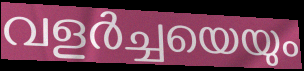
വളർച്ചയെയും